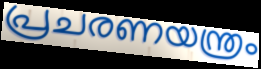
പ്രചരണയന്ത്രം